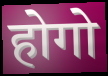
होगो